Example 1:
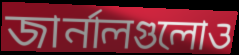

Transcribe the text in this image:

জার্নালগুলোও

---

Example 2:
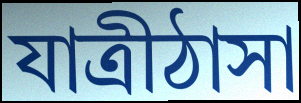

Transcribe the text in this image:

যাত্রীঠাসা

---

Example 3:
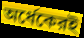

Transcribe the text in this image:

অর্ধেকেরই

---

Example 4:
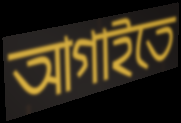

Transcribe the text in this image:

আগাইতে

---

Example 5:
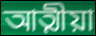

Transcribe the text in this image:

আত্মীয়া